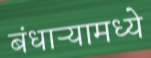
बंधाऱ्यामध्ये